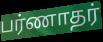
பர்ணாதர்